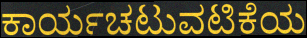
ಕಾರ್ಯಚಟುವಟಿಕೆಯ